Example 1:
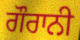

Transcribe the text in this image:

ਗੌਰਾਨੀ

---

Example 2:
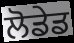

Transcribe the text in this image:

ਲੋਡੇਡ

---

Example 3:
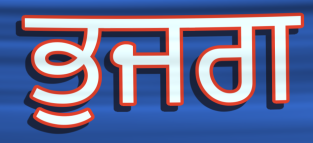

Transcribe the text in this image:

ਭੁਜਗ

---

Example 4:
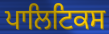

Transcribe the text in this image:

ਪਾਲਿਟਿਕਸ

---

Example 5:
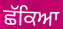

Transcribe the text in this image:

ਛੱਕਿਆ